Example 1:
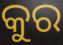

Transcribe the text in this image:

କୁର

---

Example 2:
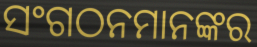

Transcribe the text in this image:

ସଂଗଠନମାନଙ୍କର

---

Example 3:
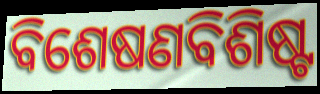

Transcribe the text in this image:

ବିଶେଷଣବିଶିଷ୍ଟ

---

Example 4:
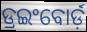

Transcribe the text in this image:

ଡ୍ରଇଂବୋର୍ଡ଼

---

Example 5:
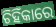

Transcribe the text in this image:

ଚିହିଁକାରେ